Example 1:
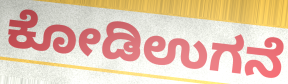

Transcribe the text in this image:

ಕೋಡಿಉಗನೆ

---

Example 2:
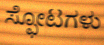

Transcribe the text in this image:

ಸ್ಫೋಟಗಳು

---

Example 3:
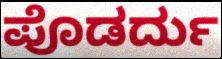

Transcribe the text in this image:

ಪೊಡರ್ದು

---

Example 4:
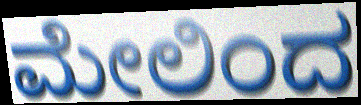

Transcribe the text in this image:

ಮೇಲಿಂದ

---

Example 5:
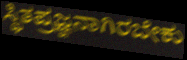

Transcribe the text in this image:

ಸ್ಥಿತಪ್ರಜ್ಞನಾಗಿರಬೇಕು